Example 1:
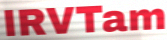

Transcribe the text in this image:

IRVTam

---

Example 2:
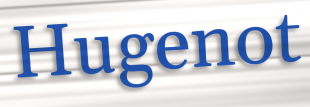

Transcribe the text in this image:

Hugenot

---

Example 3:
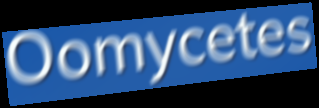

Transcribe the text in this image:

Oomycetes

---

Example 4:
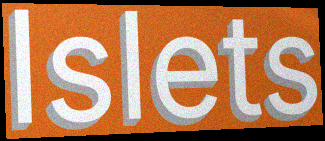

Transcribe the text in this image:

Islets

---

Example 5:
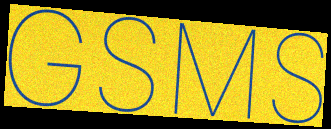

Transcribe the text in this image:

GSMS